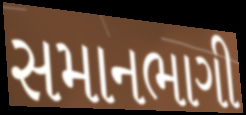
સમાનભાગી